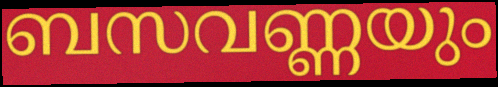
ബസവണ്ണയും